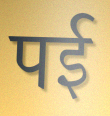
पई